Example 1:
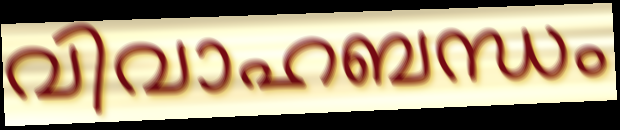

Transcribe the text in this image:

വിവാഹബന്ധം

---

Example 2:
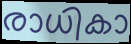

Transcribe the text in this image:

രാധികാ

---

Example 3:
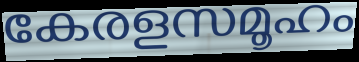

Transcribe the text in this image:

കേരളസമൂഹം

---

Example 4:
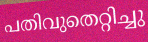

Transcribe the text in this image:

പതിവുതെറ്റിച്ചു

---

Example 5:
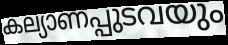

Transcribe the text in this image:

കല്യാണപ്പുടവയും